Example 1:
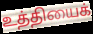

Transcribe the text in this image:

உத்தியைக்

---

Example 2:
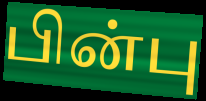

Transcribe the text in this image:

பின்பு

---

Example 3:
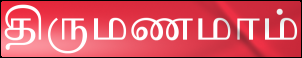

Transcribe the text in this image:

திருமணமாம்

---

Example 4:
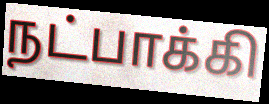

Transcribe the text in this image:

நட்பாக்கி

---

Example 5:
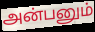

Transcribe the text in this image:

அன்பனும்